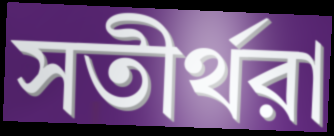
সতীর্থরা